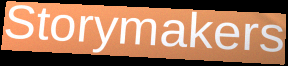
Storymakers